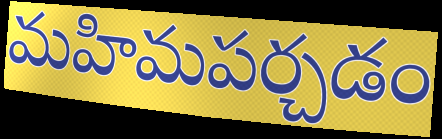
మహిమపర్చడం